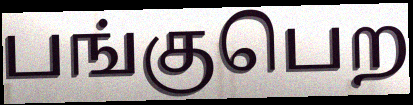
பங்குபெற